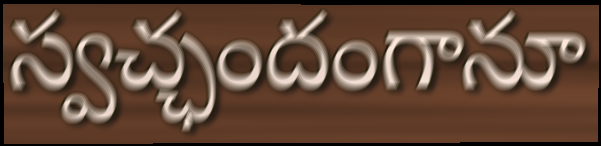
స్వచ్ఛందంగానూ